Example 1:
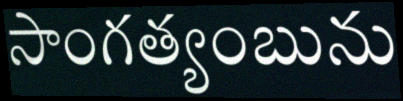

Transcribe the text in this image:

సాంగత్యంబును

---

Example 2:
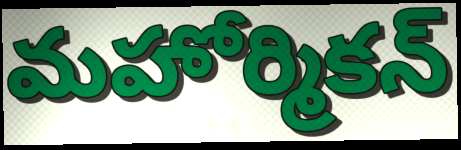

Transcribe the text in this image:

మహోర్మికన్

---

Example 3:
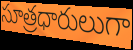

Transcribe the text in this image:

సూత్రధారులుగా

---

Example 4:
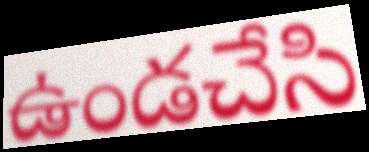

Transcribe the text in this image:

ఉండచేసి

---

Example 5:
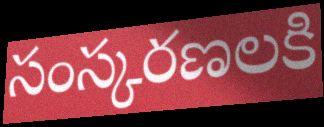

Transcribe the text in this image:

సంస్కరణలకి